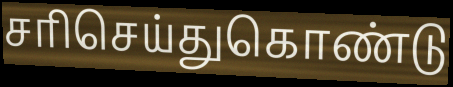
சரிசெய்துகொண்டு